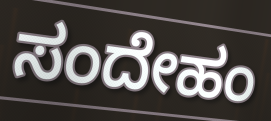
ಸಂದೇಹಂ